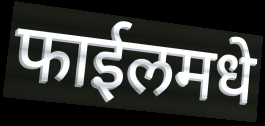
फाईलमधे